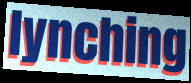
lynching